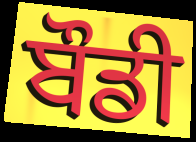
ਬੌਡੀ